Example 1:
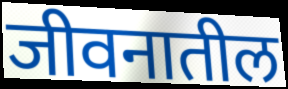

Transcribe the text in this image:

जीवनातील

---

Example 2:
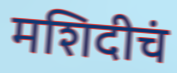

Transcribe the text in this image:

मशिदीचं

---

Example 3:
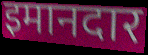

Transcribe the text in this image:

इमानदार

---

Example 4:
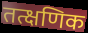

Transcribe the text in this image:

तत्क्षणिक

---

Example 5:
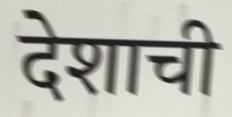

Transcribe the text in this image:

देशाची